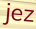
jez